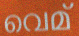
വെമ്